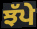
ਝੱਪੇ